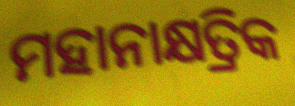
ମହାନାକ୍ଷତ୍ରିକ